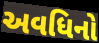
અવધિનો